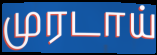
முரடாய்